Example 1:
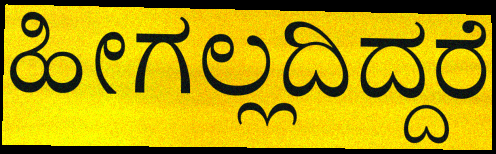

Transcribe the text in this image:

ಹೀಗಲ್ಲದಿದ್ದರೆ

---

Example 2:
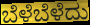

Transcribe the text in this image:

ಬೆಳೆಬೆಳೆದು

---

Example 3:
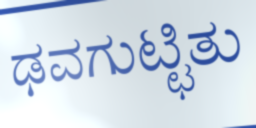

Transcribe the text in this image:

ಢವಗುಟ್ಟಿತು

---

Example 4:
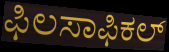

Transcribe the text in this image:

ಫಿಲಸಾಫಿಕಲ್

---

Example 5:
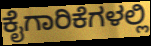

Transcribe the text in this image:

ಕೈಗಾರಿಕೆಗಳಲ್ಲಿ